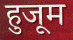
हुजूम